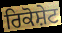
ਰਿਕੋਸ਼ੇਟ